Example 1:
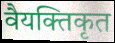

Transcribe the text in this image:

वैयक्तिकृत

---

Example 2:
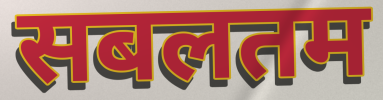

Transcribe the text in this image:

सबलतम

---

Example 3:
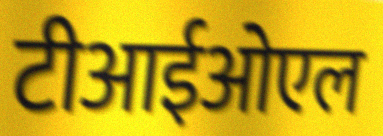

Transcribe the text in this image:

टीआईओएल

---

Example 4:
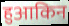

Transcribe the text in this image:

हुआकिन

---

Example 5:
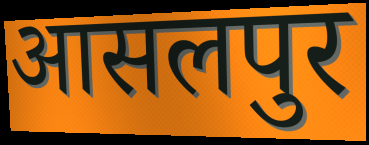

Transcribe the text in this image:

आसलपुर